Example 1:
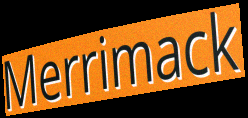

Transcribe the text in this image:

Merrimack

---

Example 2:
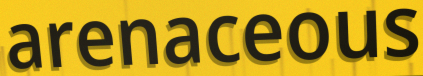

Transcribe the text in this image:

arenaceous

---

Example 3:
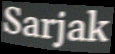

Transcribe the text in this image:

Sarjak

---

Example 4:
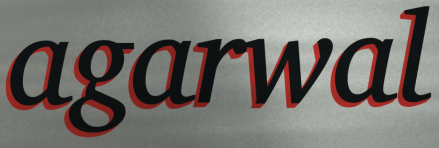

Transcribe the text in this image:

agarwal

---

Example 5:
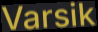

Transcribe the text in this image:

Varsik